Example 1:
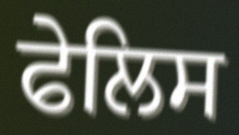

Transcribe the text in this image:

ਫੇਲਿਸ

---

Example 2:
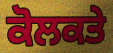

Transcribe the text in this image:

ਕੋਲਕਤੇ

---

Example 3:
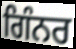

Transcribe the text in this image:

ਗਿੰਨਰ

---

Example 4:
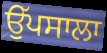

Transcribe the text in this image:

ਉੱਪਸਾਲਾ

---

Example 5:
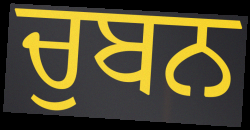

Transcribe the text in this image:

ਚੁਬਨ